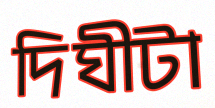
দিঘীটা